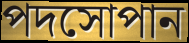
পদসোপান